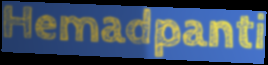
Hemadpanti